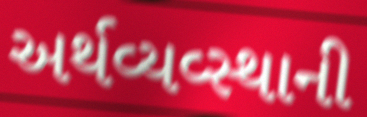
અર્થવ્યવ્સ્થાની